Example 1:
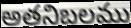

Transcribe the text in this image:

అతనిబలము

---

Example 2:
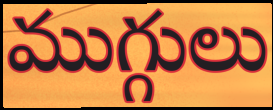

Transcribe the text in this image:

ముగ్గులు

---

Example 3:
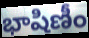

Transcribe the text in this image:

భాషిణీం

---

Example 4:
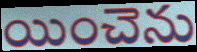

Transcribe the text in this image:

యించెను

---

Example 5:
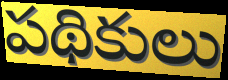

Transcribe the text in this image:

పథికులు